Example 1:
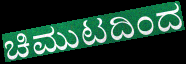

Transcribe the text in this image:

ಚಿಮುಟದಿಂದ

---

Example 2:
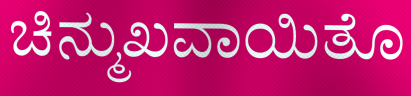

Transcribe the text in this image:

ಚಿನ್ಮುಖವಾಯಿತೊ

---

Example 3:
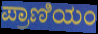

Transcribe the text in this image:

ಪ್ರಾಣಿಯಂ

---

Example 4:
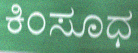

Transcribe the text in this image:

ಕಿಂಸೂಧ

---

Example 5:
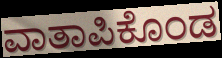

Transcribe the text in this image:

ವಾತಾಪಿಕೊಂಡ